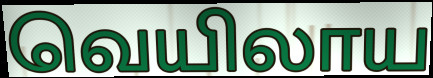
வெயிலாய